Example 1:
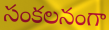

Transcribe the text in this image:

సంకలనంగా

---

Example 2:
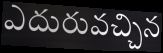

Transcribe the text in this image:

ఎదురువచ్చిన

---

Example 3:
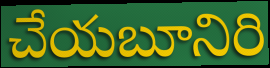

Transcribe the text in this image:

చేయబూనిరి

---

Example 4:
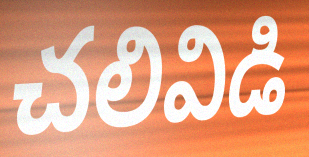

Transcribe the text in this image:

చలివిడి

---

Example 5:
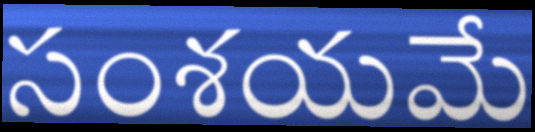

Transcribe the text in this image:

సంశయమే